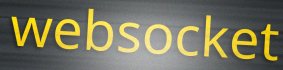
websocket